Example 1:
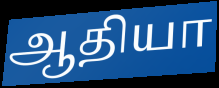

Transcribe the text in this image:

ஆதியா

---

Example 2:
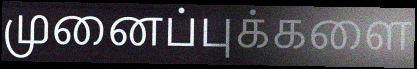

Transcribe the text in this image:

முனைப்புக்களை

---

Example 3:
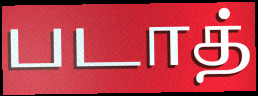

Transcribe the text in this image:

படாத்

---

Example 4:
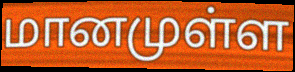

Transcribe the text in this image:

மானமுள்ள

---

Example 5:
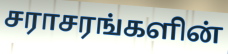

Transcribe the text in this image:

சராசரங்களின்